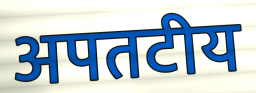
अपतटीय